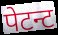
पेटन्ट